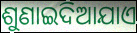
ଶୁଣାଇଦିଆଯାଏ